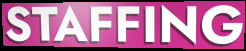
STAFFING